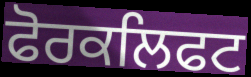
ਫੋਰਕਲਿਫਟ